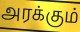
அரக்கும்